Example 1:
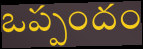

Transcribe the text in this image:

ఒప్పందం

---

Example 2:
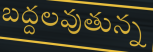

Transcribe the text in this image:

బద్దలవుతున్న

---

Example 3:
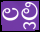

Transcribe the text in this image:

లల్లి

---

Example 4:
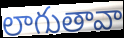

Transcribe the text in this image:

లాగుతావా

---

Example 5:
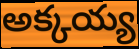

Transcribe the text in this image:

అక్కయ్య